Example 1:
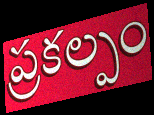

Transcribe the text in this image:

ప్రకల్పం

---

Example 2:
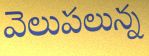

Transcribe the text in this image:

వెలుపలున్న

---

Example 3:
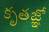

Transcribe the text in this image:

కృతజ్ఞో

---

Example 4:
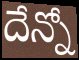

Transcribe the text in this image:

దేన్నో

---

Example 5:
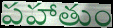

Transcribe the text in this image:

పహాతుం